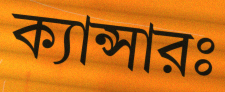
ক্যান্সারঃ